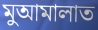
মুআমালাত